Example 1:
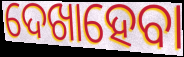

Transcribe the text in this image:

ଦେଖାହେବା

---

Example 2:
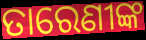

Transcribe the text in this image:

ତାରେଣୀଙ୍କ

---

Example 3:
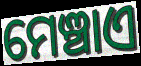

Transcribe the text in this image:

ମେଞ୍ଚାଏ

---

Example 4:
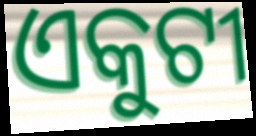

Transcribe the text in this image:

ଏକୁଟୀ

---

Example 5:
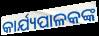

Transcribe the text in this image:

କାର୍ଯ୍ୟପାଳକଙ୍କ